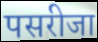
पसरीजा